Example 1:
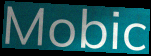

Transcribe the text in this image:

Mobic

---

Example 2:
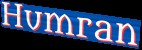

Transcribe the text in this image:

Humran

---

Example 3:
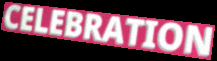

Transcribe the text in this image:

CELEBRATION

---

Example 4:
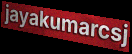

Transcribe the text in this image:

jayakumarcsj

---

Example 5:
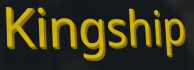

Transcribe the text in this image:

Kingship